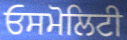
ਓਸਮੋਲਿਟੀ